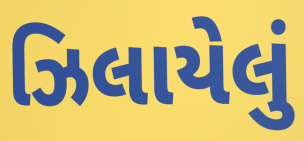
ઝિલાયેલું